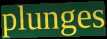
plunges